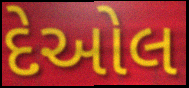
દેઓલ